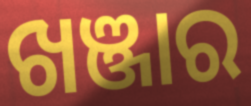
ଖଞ୍ଜାର